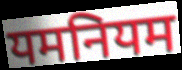
यमनियम